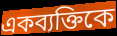
একব্যক্তিকে